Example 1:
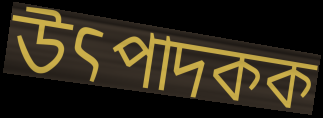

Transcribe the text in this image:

উৎপাদকক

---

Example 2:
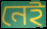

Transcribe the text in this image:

নেই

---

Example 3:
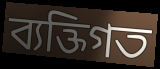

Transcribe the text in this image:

ব্যক্তিগত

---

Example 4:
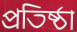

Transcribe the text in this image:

প্ৰতিষ্ঠা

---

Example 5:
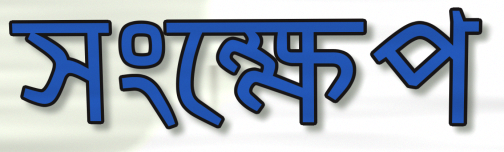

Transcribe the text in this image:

সংক্ষেপ